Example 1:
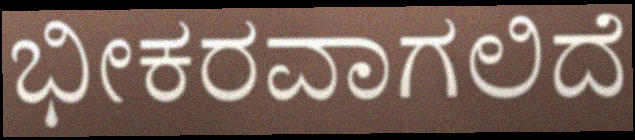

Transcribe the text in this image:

ಭೀಕರವಾಗಲಿದೆ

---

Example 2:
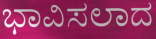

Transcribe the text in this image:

ಭಾವಿಸಲಾದ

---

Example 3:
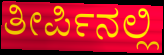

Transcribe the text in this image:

ತೀರ್ಪಿನಲ್ಲಿ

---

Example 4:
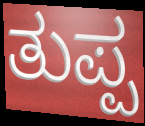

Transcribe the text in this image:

ತುಪ್ಪ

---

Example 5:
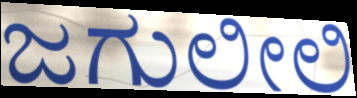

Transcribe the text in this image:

ಜಗುಲೀಲಿ